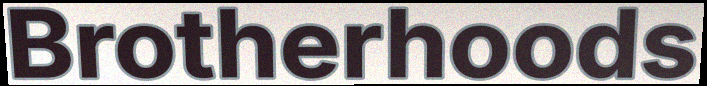
Brotherhoods